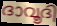
ദാവൂദി